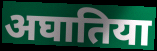
अघातिया